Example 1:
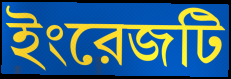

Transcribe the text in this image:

ইংরেজটি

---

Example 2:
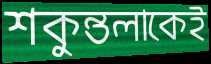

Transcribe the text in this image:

শকুন্তলাকেই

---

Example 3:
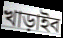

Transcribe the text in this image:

খাড়াইব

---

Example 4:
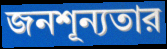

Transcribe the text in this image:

জনশূন্যতার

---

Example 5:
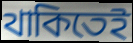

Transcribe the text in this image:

থাকিতেই